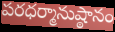
పరధర్మానుష్ఠానం